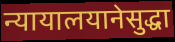
न्यायालयानेसुद्धा